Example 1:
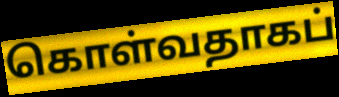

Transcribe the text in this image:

கொள்வதாகப்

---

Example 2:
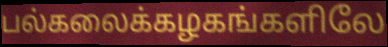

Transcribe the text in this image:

பல்கலைக்கழகங்களிலே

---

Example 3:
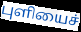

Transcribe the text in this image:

புளியைச்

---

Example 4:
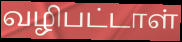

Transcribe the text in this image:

வழிபட்டாள்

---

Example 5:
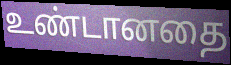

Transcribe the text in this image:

உண்டானதை